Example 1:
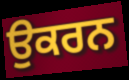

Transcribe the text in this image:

ਉਕਰਨ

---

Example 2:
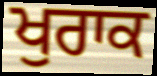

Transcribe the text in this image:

ਖੁਰਾਕ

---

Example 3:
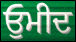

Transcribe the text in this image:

ਓੁਮੀਦ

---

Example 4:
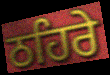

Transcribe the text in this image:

ਠਹਿਰੇ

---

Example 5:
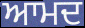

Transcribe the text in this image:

ਆਮਦ